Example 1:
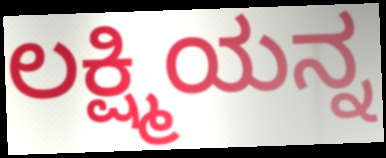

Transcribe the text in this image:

ಲಕ್ಷ್ಮಿಯನ್ನ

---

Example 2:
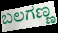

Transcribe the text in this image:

ಬಲಗಣ್ಣ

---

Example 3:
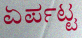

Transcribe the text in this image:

ಏರ್ಪಟ್ಟ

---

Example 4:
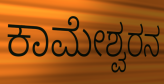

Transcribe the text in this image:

ಕಾಮೇಶ್ವರನ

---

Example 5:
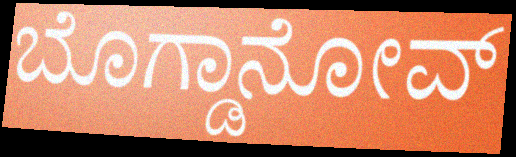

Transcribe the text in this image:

ಬೊಗ್ಡಾನೋವ್